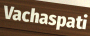
Vachaspati